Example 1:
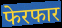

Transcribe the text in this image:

फेरफार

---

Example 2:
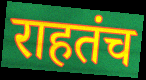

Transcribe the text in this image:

राहतंच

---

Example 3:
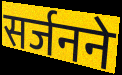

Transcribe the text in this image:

सर्जनने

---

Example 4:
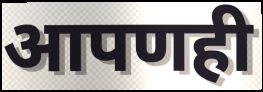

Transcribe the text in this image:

आपणही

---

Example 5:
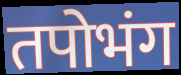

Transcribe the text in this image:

तपोभंग